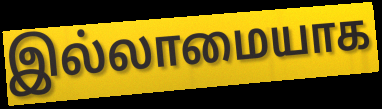
இல்லாமையாக